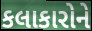
કલાકારોને